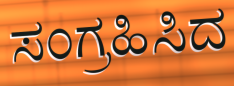
ಸಂಗ್ರಹಿಸಿದ